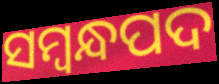
ସମ୍ବନ୍ଧପଦ